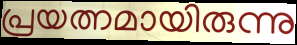
പ്രയത്നമായിരുന്നു